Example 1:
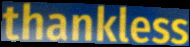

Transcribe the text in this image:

thankless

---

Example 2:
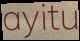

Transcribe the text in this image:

ayitu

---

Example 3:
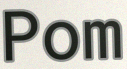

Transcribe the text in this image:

Pom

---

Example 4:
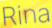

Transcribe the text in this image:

Rina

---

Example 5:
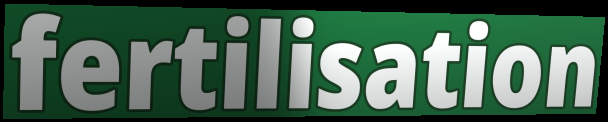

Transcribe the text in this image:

fertilisation